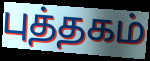
புத்தகம்